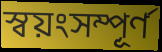
স্বয়ংসম্পূর্ণ